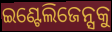
ଇଣ୍ଟେଲିଜେନ୍ସକୁ